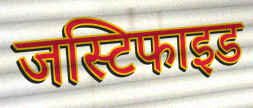
जस्टिफाइड